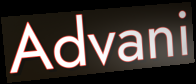
Advani